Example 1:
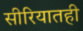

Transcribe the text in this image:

सीरियातही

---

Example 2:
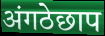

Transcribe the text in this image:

अंगठेछाप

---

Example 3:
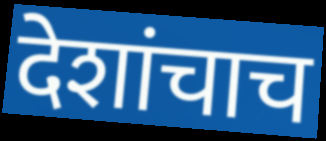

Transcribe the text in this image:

देशांचाच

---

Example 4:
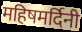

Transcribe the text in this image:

महिषमर्दिनी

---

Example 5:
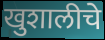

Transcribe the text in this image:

खुशालीचे